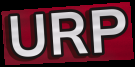
URP